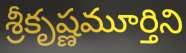
శ్రీకృష్ణమూర్తిని